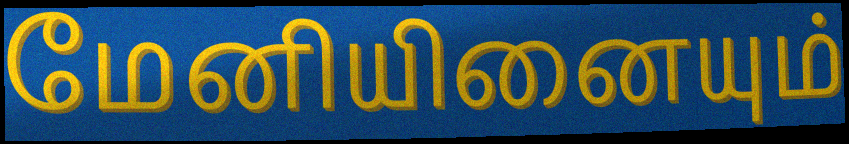
மேனியினையும்